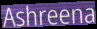
Ashreena